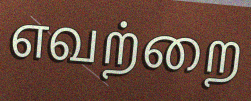
எவற்றை